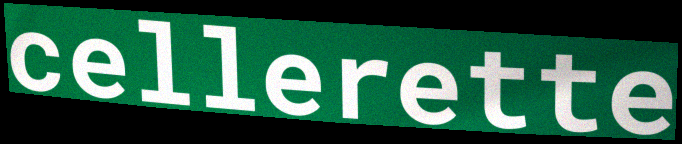
cellerette